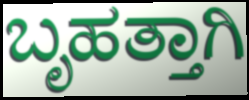
ಬೃಹತ್ತಾಗಿ